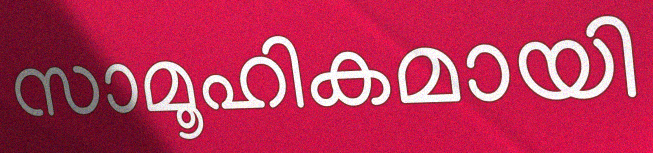
സാമൂഹികമായി